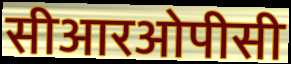
सीआरओपीसी